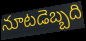
నూటడెబ్బది